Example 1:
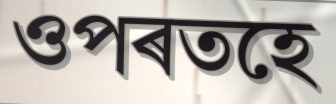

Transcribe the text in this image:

ওপৰতহে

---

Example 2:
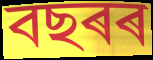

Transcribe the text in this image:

বছৰৰ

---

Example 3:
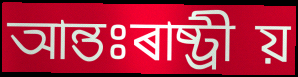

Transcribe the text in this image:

আন্তঃৰাষ্ট্ৰীয়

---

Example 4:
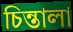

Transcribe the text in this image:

চিন্তালা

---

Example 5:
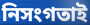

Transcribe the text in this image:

নিসংগতাই